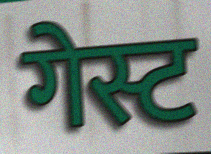
गेस्ट